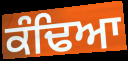
ਕੰਢਿਆ